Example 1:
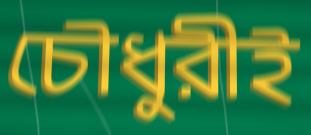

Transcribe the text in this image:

চৌধুরীই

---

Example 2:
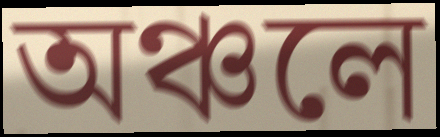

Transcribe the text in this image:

অঞ্চলে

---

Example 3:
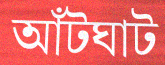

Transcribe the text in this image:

আঁটঘাট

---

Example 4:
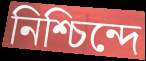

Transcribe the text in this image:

নিশ্চিন্দে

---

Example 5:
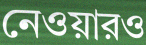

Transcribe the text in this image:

নেওয়ারও